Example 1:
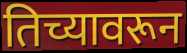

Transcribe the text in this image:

तिच्यावरून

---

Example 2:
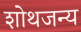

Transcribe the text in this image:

शोथजन्य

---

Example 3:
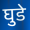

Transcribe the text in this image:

घुडे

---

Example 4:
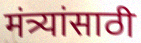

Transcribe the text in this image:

मंत्र्यांसाठी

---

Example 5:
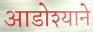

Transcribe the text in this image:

आडोश्याने